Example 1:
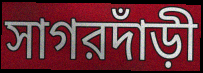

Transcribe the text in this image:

সাগরদাঁড়ী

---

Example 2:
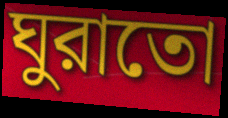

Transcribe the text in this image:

ঘুরাতো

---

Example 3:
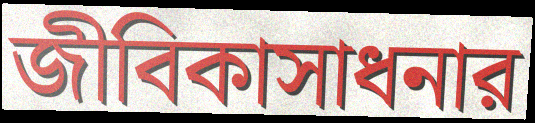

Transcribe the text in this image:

জীবিকাসাধনার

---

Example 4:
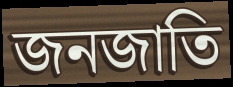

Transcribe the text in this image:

জনজাতি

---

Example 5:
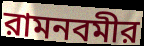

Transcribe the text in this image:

রামনবমীর